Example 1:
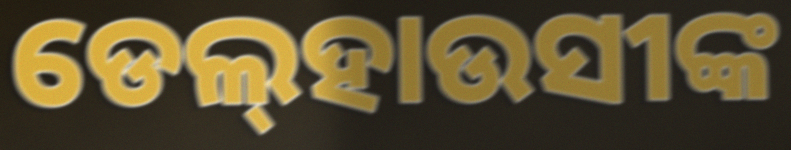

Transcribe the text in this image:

ଡେଲ୍‌ହାଉସୀଙ୍କ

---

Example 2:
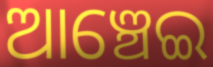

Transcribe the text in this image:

ଆଞ୍ଚେଇ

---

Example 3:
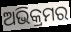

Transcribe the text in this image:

ଅଭିକ୍ରମର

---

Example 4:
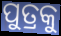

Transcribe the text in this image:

ପୁତ୍ରକୁ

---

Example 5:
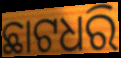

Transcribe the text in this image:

ଛାଟଧରି